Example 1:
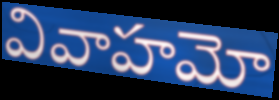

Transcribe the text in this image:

వివాహమో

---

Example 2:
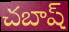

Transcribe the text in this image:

చబాష్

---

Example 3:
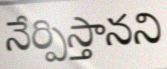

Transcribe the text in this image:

నేర్పిస్తానని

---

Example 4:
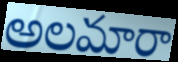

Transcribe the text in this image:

అలమారా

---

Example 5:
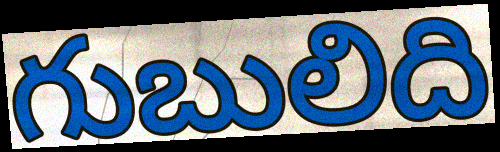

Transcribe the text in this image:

గుబులిది